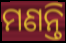
ମଣନ୍ତି